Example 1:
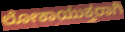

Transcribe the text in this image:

ಲೋಕಾಯುಕ್ತರಾಗಿ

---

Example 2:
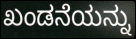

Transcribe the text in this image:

ಖಂಡನೆಯನ್ನು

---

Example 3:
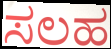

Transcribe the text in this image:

ಸಲಹ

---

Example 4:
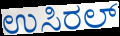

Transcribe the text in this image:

ಉಸಿರಲ್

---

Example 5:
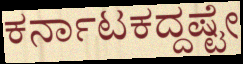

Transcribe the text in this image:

ಕರ್ನಾಟಕದ್ದಷ್ಟೇ